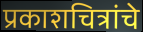
प्रकाशचित्रांचे